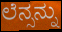
ಲೆನ್ಸನ್ನು